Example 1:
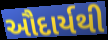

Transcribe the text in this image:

ઔદાર્યથી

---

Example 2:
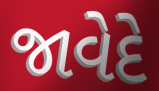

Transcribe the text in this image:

જાવેદે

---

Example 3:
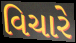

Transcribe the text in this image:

વિચારે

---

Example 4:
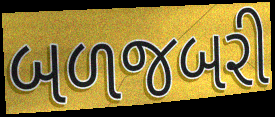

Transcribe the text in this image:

બળજબરી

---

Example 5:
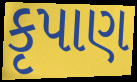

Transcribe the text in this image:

કૃપાણ